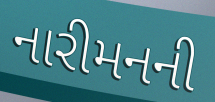
નારીમનની